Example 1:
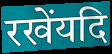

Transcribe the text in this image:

रखेंयदि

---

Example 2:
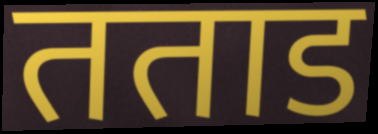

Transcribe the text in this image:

तताड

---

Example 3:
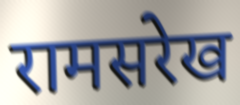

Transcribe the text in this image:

रामसरेख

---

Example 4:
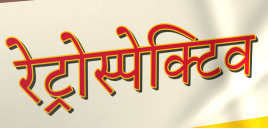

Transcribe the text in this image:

रेट्रोस्पेक्टिव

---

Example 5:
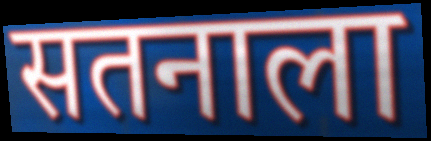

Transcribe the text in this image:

सतनाला